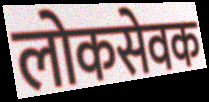
लोकसेवक